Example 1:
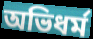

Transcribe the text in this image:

অভিধর্ম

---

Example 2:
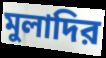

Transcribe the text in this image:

মুলাদির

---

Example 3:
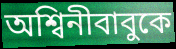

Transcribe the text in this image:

অশ্বিনীবাবুকে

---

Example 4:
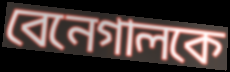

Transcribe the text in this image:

বেনেগালকে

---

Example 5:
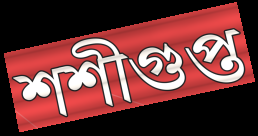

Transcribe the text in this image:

শশীগুপ্ত